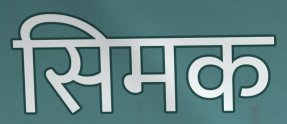
सिमक